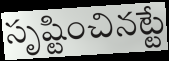
సృష్టించినట్టే